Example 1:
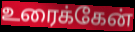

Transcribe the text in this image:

உரைக்கேன்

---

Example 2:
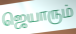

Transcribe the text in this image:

ஜெயாரும்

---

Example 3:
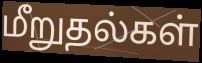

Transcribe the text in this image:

மீறுதல்கள்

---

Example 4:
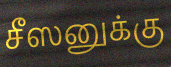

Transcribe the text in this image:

சீஸனுக்கு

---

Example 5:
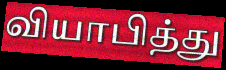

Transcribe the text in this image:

வியாபித்து